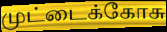
முட்டைக்கோசு